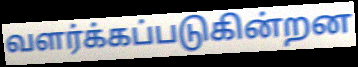
வளர்க்கப்படுகின்றன